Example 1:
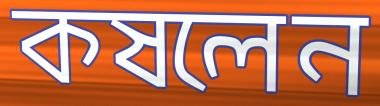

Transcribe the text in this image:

কষলেন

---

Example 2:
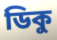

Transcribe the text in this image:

ডিকু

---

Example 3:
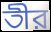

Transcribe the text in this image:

তীর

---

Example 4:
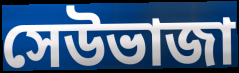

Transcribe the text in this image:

সেউভাজা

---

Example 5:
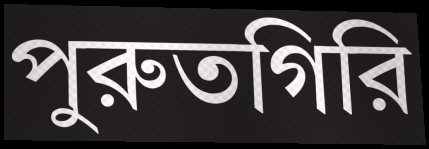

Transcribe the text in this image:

পুরুতগিরি